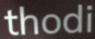
thodi